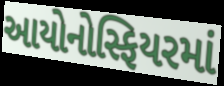
આયોનોસ્ફિયરમાં